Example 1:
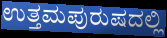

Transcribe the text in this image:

ಉತ್ತಮಪುರುಷದಲ್ಲಿ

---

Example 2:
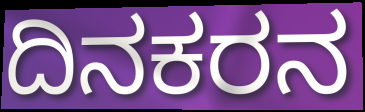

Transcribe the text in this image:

ದಿನಕರನ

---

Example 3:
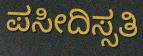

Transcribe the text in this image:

ಪಸೀದಿಸ್ಸತಿ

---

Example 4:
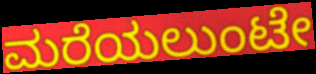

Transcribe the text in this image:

ಮರೆಯಲುಂಟೇ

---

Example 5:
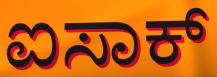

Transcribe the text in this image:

ಐಸಾಕ್